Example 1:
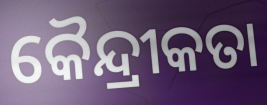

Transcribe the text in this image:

କୈନ୍ଦ୍ରୀକତା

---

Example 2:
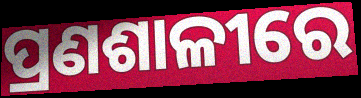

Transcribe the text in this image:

ପ୍ରଣଶାଳୀରେ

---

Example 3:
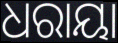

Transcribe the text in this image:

ଧରାୟା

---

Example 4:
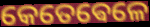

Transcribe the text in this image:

କେତେଵେଳେ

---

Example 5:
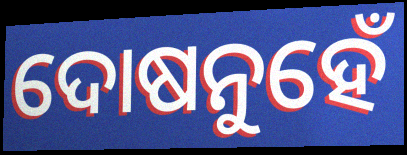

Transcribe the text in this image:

ଦୋଷନୁହେଁ